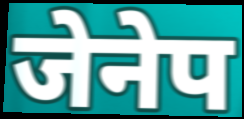
जेनेप